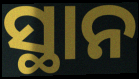
ସ୍ଥାନ